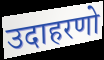
उदाहरणो